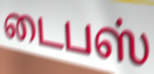
டைபஸ்